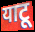
याटू